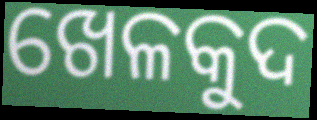
ଖେଳକୁଦ